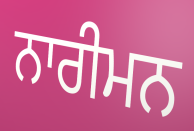
ਨਾਰੀਮਨ